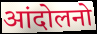
आंदोलनो